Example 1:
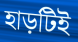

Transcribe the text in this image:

হাড়টিই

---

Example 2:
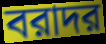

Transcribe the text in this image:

বরাদর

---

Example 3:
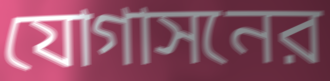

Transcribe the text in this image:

যোগাসনের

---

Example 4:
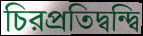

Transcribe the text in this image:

চিরপ্রতিদ্বন্দ্বি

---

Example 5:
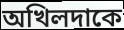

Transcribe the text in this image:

অখিলদাকে